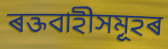
ৰক্তবাহীসমূহৰ